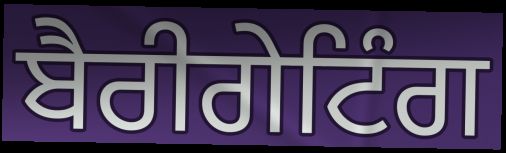
ਬੈਰੀਗੇਟਿੰਗ